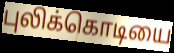
புலிக்கொடியை